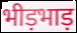
भीड़भाड़